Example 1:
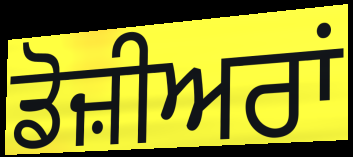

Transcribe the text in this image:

ਡੋਜ਼ੀਅਰਾਂ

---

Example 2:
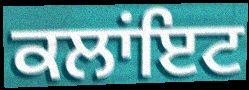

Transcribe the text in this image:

ਕਲਾਂਇਟ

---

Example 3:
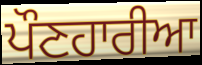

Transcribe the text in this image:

ਪੌਣਹਾਰੀਆ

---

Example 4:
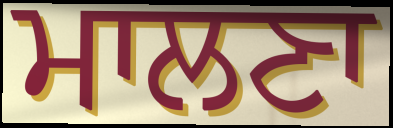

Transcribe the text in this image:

ਮਾਲਣਾ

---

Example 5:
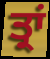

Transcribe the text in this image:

ਤ੍ਰਾਂ